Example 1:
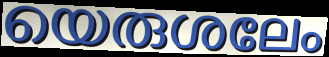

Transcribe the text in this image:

യെരുശലേം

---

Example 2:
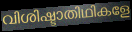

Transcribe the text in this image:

വിശിഷ്ടാതിഥികളേ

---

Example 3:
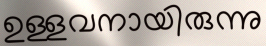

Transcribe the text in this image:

ഉള്ളവനായിരുന്നു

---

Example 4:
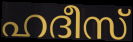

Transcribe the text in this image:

ഹദീസ്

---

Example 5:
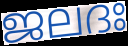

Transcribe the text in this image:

ജലദഃ